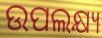
ଉପଲକ୍ଷ୍ୟ